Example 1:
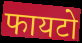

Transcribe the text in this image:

फायटो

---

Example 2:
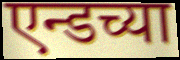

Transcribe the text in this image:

एन्डच्या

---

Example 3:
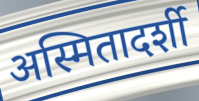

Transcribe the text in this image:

अस्मितादर्शी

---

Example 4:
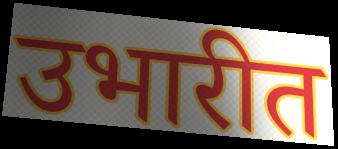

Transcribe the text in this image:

उभारीत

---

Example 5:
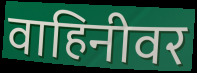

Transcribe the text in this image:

वाहिनीवर